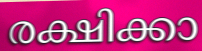
രക്ഷിക്കാ